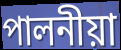
পালনীয়া